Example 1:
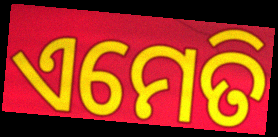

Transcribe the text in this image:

ଏମେତି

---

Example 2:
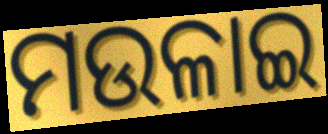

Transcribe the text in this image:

ମଉଳାଇ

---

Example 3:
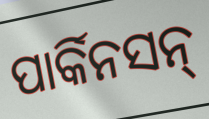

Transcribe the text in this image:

ପାର୍କିନସନ୍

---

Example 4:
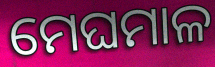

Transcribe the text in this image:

ମେଘମାଳ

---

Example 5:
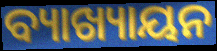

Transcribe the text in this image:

ବ୍ୟାଖ୍ୟାୟନ